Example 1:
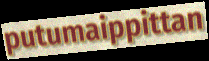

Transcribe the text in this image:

putumaippittan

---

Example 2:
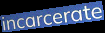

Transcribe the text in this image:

incarcerate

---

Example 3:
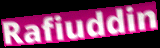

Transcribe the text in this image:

Rafiuddin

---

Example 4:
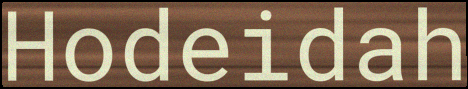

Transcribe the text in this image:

Hodeidah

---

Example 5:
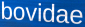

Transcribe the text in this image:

bovidae